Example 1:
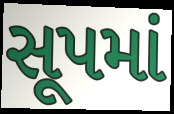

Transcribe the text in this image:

સૂપમાં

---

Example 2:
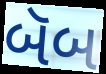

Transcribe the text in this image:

બૅબ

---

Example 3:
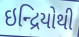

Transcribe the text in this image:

ઇન્દ્રિયોથી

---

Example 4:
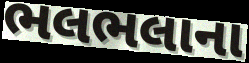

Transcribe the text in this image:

ભલભલાના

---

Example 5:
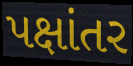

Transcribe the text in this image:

પક્ષાંતર